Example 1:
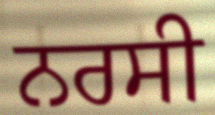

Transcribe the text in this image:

ਨਰਸੀ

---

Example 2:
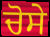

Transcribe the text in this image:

ਚੋਸੇ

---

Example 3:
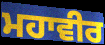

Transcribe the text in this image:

ਮਹਾਵੀਰ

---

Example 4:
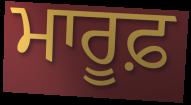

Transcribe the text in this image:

ਮਾਰੂਫ਼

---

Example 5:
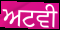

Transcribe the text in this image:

ਅਟਵੀ